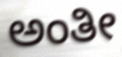
ಅಂತೀ